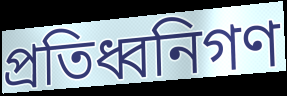
প্রতিধ্বনিগণ